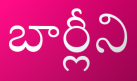
బార్లీని